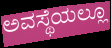
ಅವಸ್ಥೆಯಲ್ಲೂ